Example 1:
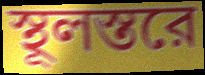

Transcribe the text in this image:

স্থূলস্তরে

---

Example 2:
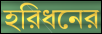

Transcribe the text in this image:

হরিধনের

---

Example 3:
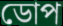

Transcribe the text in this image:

ডোপ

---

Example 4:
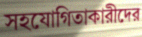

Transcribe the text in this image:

সহযোগিতাকারীদের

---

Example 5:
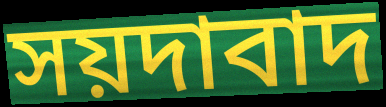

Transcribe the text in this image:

সয়দাবাদ